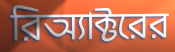
রিঅ্যাক্টরের